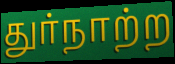
துர்நாற்ற